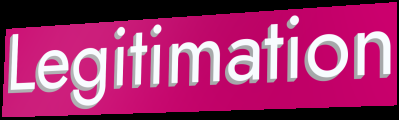
Legitimation